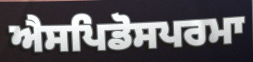
ਐਸਪਿਡੋਸਪਰਮਾ